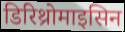
डिरिथ्रोमाइसिन